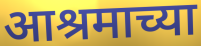
आश्रमाच्या